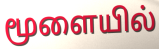
மூளையில்